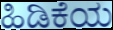
ಹಿಡಿಕೆಯ